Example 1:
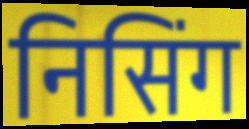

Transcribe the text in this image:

निसिंग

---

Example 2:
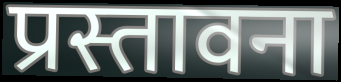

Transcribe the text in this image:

प्रस्‍तावना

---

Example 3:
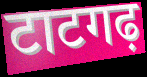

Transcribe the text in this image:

टाटगढ़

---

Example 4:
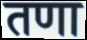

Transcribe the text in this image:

तणा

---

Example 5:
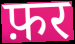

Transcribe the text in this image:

फ़र